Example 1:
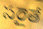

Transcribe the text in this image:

సరైతే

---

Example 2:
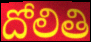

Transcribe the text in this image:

దోలితి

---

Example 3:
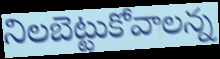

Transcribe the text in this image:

నిలబెట్టుకోవాలన్న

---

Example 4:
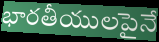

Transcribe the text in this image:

భారతీయులపైనే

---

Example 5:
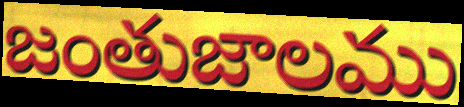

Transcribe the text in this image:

జంతుజాలము